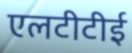
एलटीटीई